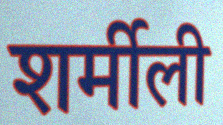
शर्मीली